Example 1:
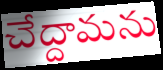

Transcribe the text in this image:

చేద్దామను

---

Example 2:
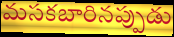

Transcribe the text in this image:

మసకబారినప్పుడు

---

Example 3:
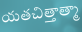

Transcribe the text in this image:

యతచిత్తాత్మా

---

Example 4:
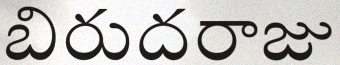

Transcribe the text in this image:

బిరుదరాజు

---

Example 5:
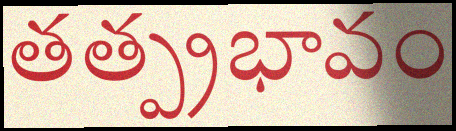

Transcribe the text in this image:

తత్ప్రభావం